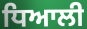
ਧਿਆਲੀ